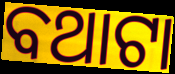
ବଥାଟା